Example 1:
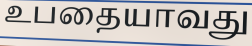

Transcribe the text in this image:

உபதையாவது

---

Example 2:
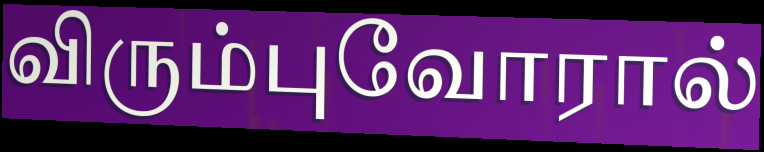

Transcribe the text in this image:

விரும்புவோரால்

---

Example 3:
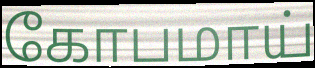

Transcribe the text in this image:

கோபமாய்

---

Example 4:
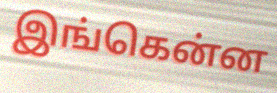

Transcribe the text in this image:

இங்கென்ன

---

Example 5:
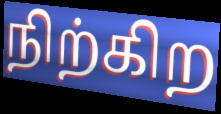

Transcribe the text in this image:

நிற்கிற